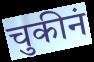
चुकीनं